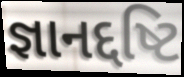
જ્ઞાનદ્દષ્ટિ